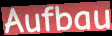
Aufbau